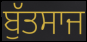
ਬੁੱਤਸਾਜ